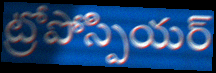
ట్రోపోస్పియర్